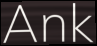
Ank